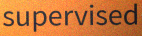
supervised